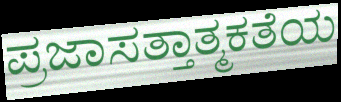
ಪ್ರಜಾಸತ್ತಾತ್ಮಕತೆಯ